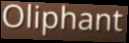
Oliphant